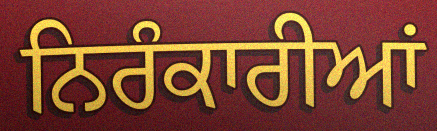
ਨਿਰੰਕਾਰੀਆਂ